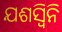
ଯଶସ୍ୱିନି